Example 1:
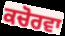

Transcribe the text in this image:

ਕਚੋਰਵਾ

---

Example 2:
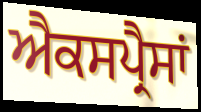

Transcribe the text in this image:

ਐਕਸਪ੍ਰੈਸਾਂ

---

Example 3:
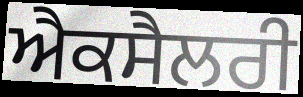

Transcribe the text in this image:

ਐਕਸੈਲਰੀ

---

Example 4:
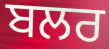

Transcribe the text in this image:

ਬਲਰ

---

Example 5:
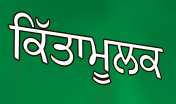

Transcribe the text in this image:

ਕਿੱਤਾਮੂਲਕ